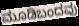
ಮೂಡಿಬಂದವು